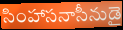
సింహాసనాసీనుడై